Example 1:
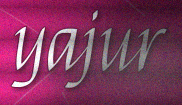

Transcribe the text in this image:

yajur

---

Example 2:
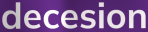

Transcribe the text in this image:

decesion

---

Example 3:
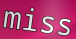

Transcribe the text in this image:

miss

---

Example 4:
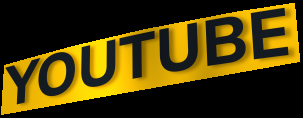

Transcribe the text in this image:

YOUTUBE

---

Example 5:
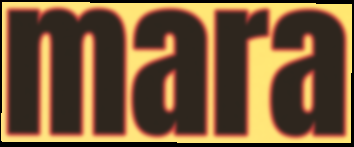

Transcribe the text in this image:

mara